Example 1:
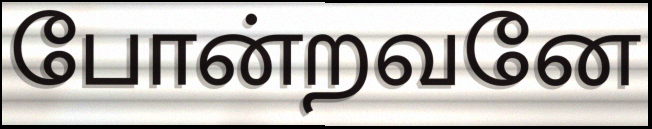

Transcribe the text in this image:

போன்றவனே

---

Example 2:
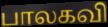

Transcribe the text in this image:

பாலகவி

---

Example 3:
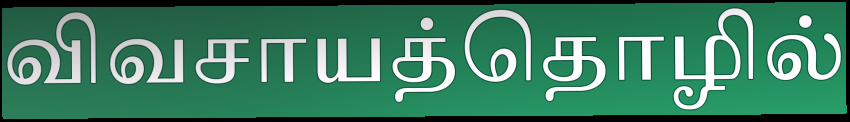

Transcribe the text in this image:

விவசாயத்தொழில்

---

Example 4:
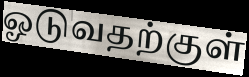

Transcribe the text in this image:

ஓடுவதற்குள்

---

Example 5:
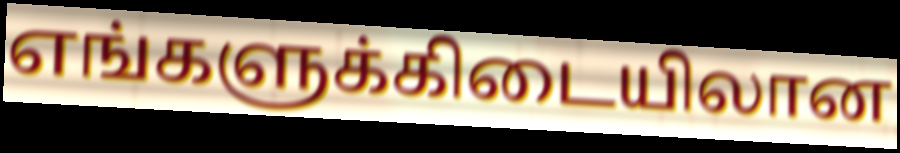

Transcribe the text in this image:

எங்களுக்கிடையிலான